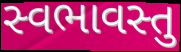
સ્વભાવસ્તુ